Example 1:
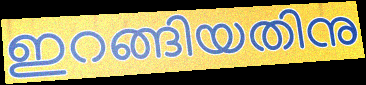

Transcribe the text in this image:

ഇറങ്ങിയതിനു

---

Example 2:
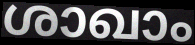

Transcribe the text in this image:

ശാഖാം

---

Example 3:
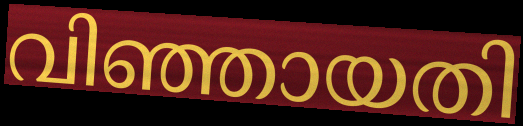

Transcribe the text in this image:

വിഞ്ഞായതി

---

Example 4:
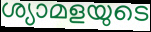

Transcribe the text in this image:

ശ്യാമളയുടെ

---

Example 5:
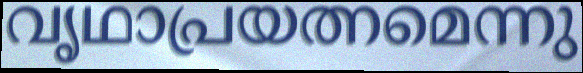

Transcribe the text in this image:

വൃഥാപ്രയത്നമെന്നു